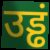
उड्ढं